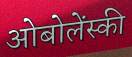
ओबोलेंस्की